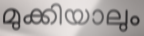
മുക്കിയാലും